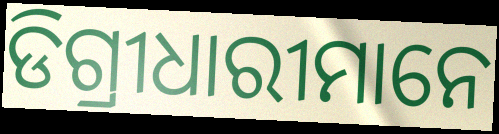
ଡିଗ୍ରୀଧାରୀମାନେ